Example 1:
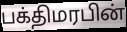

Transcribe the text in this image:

பக்திமரபின்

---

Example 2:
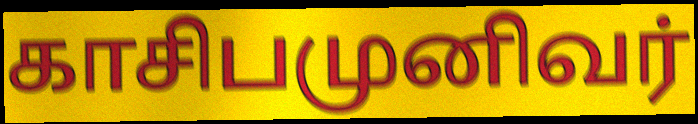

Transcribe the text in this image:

காசிபமுனிவர்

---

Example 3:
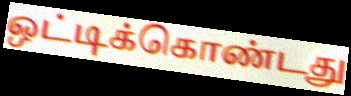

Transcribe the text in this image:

ஒட்டிக்கொண்டது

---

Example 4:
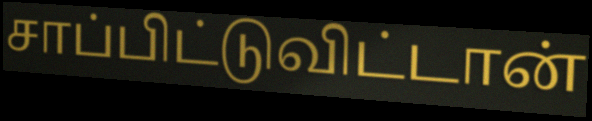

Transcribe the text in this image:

சாப்பிட்டுவிட்டான்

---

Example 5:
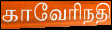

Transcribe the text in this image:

காவேரிநதி